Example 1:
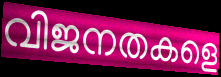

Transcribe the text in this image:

വിജനതകളെ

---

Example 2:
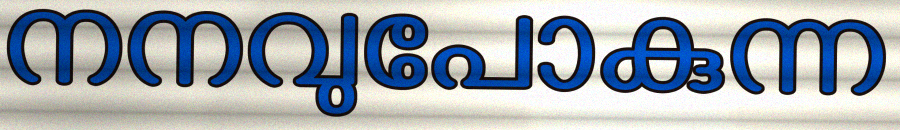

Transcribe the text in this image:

നനവുപോകുന്ന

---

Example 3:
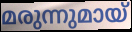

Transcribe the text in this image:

മരുന്നുമായ്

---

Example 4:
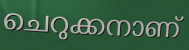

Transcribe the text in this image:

ചെറുക്കനാണ്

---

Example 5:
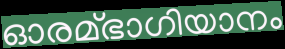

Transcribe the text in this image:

ഓരമ്ഭാഗിയാനം